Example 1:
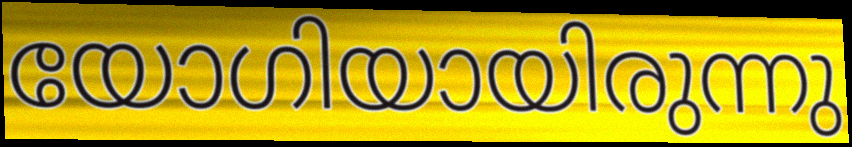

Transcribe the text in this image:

യോഗിയായിരുന്നു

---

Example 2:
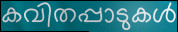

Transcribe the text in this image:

കവിതപ്പാടുകൾ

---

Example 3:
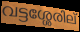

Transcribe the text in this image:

വട്ടശ്ശേരില്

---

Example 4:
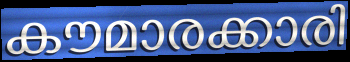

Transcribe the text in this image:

കൗമാരക്കാരി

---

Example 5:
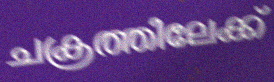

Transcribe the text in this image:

ചക്രത്തിലേക്ക്